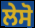
ਲੇਸੋ